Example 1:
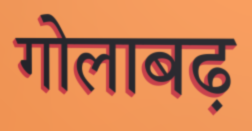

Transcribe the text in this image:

गोलाबढ़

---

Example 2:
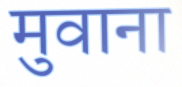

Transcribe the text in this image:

मुवाना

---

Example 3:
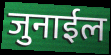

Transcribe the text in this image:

जुनाईल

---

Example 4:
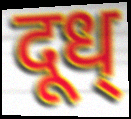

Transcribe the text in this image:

दूध्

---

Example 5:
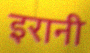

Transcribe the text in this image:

इरानी